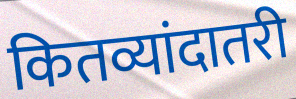
कितव्यांदातरी